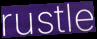
rustle